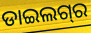
ଡାଇଲଗ୍‌ର